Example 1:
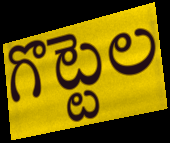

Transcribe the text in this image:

గొట్టెల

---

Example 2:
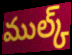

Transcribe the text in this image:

ముల్క్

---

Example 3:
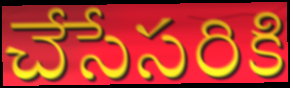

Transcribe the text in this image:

చేసేసరికి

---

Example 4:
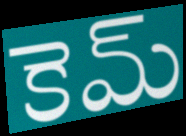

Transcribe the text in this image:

కెమ్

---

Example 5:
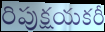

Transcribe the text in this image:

రిపుక్షయకరీ